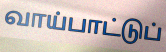
வாய்பாட்டுப்